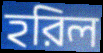
হরিল